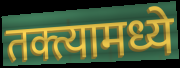
तक्‍त्यामध्ये